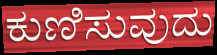
ಕುಣಿಸುವುದು